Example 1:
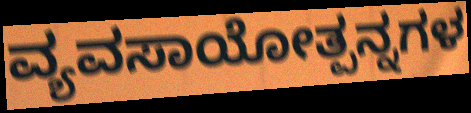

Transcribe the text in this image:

ವ್ಯವಸಾಯೋತ್ಪನ್ನಗಳ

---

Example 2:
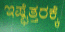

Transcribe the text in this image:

ಇಷ್ಟೆತ್ತರಕ್ಕೆ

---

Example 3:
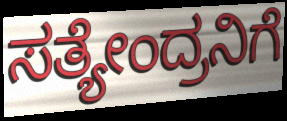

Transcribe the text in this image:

ಸತ್ಯೇಂದ್ರನಿಗೆ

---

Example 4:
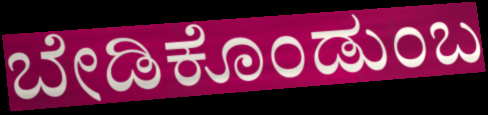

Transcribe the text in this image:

ಬೇಡಿಕೊಂಡುಂಬ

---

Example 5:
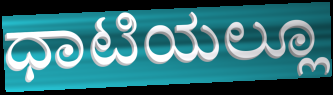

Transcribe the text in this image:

ಧಾಟಿಯಲ್ಲೂ